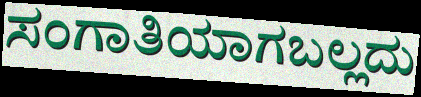
ಸಂಗಾತಿಯಾಗಬಲ್ಲದು